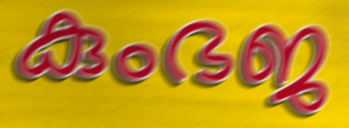
കുംഭജ